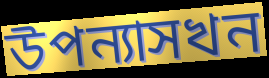
উপন্যাসখন